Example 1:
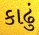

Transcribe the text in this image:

કાઢું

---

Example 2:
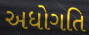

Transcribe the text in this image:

અધોગતિ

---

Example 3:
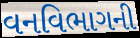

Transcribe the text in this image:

વનવિભાગની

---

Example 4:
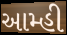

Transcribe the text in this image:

આમ્હી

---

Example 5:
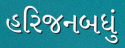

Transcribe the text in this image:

હરિજનબધું